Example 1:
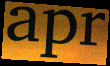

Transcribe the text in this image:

apr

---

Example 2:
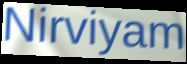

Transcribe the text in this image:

Nirviyam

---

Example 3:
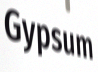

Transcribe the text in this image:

Gypsum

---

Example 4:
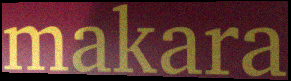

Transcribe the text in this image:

makara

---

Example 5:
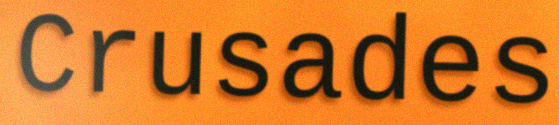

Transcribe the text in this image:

Crusades